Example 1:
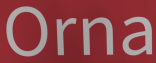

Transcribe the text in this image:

Orna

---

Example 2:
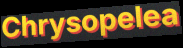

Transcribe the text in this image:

Chrysopelea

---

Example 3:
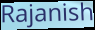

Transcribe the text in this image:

Rajanish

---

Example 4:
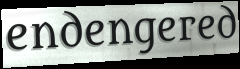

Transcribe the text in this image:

endengered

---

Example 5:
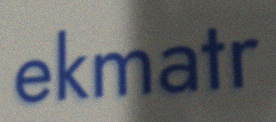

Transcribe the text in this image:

ekmatr